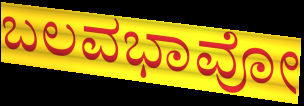
ಬಲವಭಾವೋ